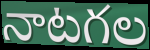
నాటగల